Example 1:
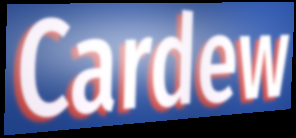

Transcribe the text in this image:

Cardew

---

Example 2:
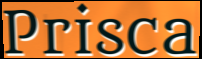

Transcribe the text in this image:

Prisca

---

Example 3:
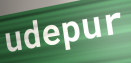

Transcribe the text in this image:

udepur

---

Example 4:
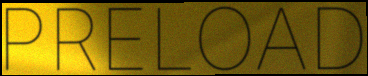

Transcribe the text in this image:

PRELOAD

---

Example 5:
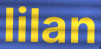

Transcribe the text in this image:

lilan